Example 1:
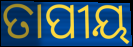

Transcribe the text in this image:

ତାପୀୟ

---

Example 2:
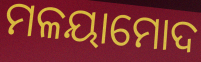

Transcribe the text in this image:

ମଳୟାମୋଦ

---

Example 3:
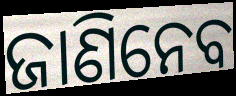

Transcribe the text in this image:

ଜାଣିନେବ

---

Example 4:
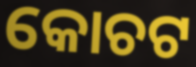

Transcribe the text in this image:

କୋଚଟ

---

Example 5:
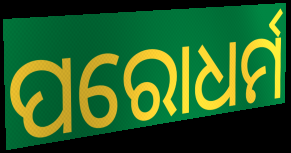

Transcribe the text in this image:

ପରୋଧର୍ମ